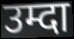
उम्‍दा